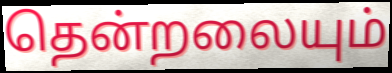
தென்றலையும்